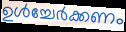
ഉൾച്ചേർക്കണം